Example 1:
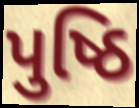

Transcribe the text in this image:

પુષ્ઠિ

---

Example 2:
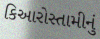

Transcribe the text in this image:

કિઆરોસ્તામીનું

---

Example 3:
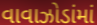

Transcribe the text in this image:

વાવાઝોડાંમાં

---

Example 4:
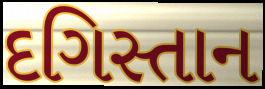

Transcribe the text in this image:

દગિસ્તાન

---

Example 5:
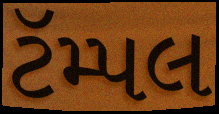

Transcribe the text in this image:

ટૅમ્પલ